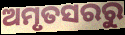
ଅମୃତସରରୁ